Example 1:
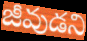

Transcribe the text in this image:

జీవుడని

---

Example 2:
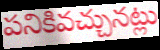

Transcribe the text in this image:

పనికివచ్చునట్లు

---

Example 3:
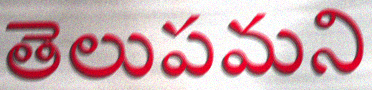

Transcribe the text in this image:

తెలుపమని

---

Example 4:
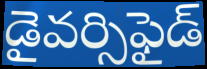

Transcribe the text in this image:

డైవర్సిఫైడ్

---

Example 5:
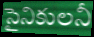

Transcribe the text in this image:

సైనికులనీ